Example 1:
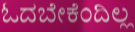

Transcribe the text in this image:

ಓದಬೇಕೆಂದಿಲ್ಲ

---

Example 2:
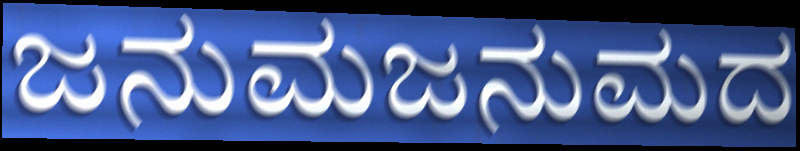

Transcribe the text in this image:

ಜನುಮಜನುಮದ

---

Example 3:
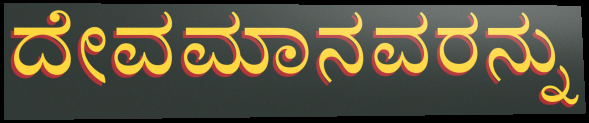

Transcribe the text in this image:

ದೇವಮಾನವರನ್ನು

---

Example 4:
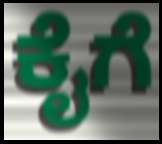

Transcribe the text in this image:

ಕೈಗೆ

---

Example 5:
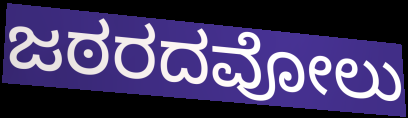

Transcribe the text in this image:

ಜಠರದವೋಲು